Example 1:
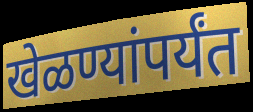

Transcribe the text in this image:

खेळण्यांपर्यंत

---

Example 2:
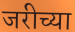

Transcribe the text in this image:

जरीच्या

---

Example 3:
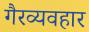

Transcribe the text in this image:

गैरव्यवहार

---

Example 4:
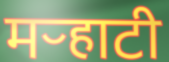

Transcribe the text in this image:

मऱ्हाटी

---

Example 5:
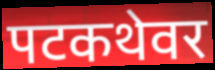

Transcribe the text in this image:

पटकथेवर